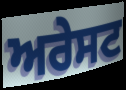
ਅਰੇਸਟ